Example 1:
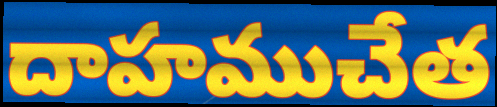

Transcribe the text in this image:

దాహముచేత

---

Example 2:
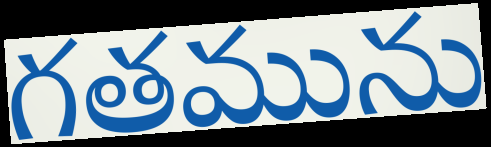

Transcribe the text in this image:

గతమును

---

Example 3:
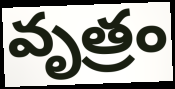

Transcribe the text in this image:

వృత్రం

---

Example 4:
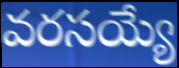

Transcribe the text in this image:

వరసయ్యే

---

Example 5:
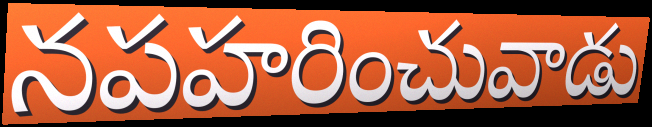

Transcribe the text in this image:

నపహరించువాడు